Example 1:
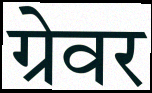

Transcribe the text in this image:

ग्रेवर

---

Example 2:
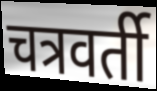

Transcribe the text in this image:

चत्रवर्ती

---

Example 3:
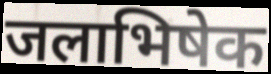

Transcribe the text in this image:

जलाभिषेक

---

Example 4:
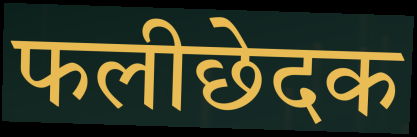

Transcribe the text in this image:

फलीछेदक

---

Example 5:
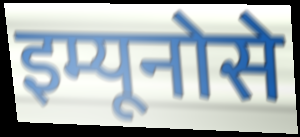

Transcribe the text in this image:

इम्यूनोसे